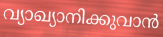
വ്യാഖ്യാനിക്കുവാൻ